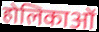
होलिकाओं